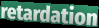
retardation